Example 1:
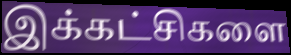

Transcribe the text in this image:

இக்கட்சிகளை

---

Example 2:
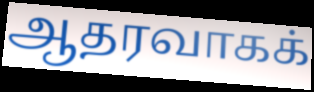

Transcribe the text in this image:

ஆதரவாகக்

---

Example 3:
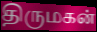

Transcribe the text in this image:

திருமகன்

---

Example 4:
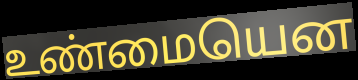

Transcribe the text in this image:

உண்மையென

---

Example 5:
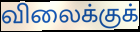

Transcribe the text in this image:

விலைக்குக்